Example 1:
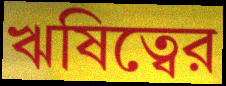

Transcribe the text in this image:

ঋষিত্বের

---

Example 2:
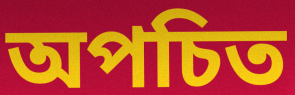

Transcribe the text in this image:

অপচিত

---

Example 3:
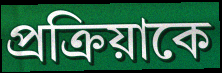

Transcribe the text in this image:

প্রক্রিয়াকে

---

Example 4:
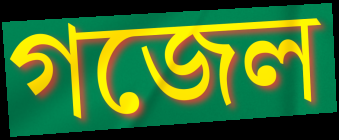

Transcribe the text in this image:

গজেল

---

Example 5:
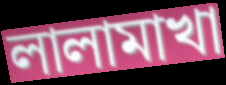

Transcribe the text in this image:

লালামাখা